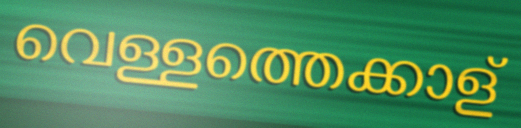
വെള്ളത്തെക്കാള്